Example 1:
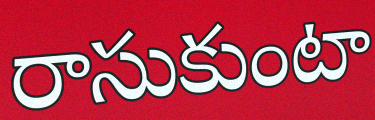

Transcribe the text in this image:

రాసుకుంటా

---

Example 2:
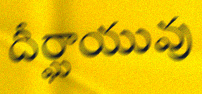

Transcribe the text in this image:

దీర్ఘాయువు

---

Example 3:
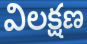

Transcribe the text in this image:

విలక్షణ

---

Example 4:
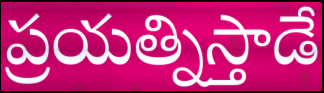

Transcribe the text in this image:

ప్రయత్నిస్తాడే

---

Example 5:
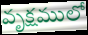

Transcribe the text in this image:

వృక్షములో